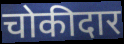
चोकीदार